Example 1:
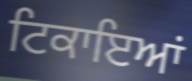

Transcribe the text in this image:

ਟਿਕਾਇਆਂ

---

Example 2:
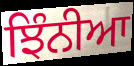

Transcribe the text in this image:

ਝਿੰਨੀਆ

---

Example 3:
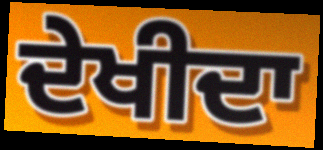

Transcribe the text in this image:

ਦੇਖੀਦਾ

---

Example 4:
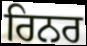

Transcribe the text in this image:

ਰਿਨਰ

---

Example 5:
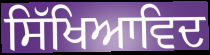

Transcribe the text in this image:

ਸਿੱਖਿਆਵਿਦ